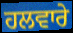
ਹਲਵਾਰੇ